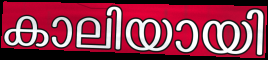
കാലിയായി